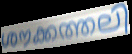
ശൗക്കത്തലി